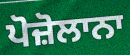
ਪੋਜ਼ੋਲਾਨਾ